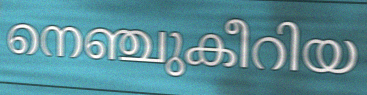
നെഞ്ചുകീറിയ